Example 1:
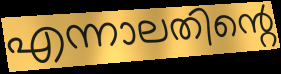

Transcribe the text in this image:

എന്നാലതിന്റെ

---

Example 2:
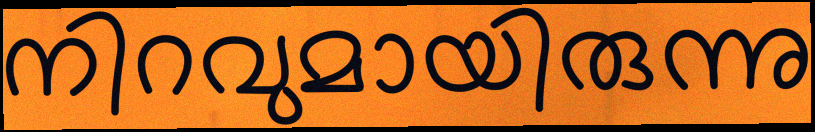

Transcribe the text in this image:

നിറവുമായിരുന്നു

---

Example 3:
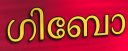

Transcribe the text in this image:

ഗിബോ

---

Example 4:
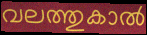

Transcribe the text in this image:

വലത്തുകാൽ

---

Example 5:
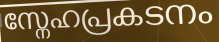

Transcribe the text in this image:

സ്നേഹപ്രകടനം